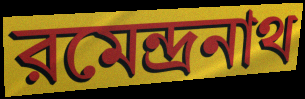
রমেন্দ্রনাথ